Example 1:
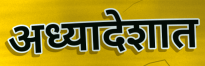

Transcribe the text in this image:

अध्यादेशात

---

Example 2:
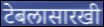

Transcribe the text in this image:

टेबलासारखी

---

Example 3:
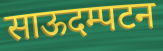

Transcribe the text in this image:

साऊदम्पटन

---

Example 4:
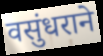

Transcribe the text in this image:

वसुंधराने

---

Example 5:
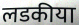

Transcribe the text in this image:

लडकीया